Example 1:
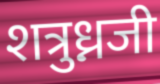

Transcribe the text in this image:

शत्रुध्नजी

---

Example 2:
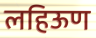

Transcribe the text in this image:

लहिऊण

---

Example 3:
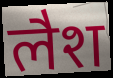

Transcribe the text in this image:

लैश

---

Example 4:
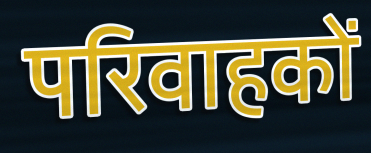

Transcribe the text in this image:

परिवाहकों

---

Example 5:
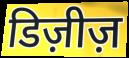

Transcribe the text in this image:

डिज़ीज़